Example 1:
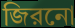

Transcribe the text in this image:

জিরনো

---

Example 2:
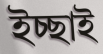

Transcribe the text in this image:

ইচ্ছাই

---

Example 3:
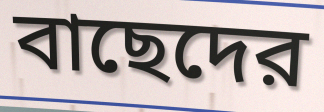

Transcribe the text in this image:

বাছেদের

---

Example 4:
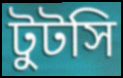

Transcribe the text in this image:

টুটসি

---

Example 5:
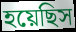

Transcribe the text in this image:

হয়েছিস